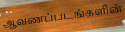
ஆவணப்படங்களின்